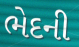
ભેદની